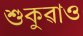
শুকুৱাও